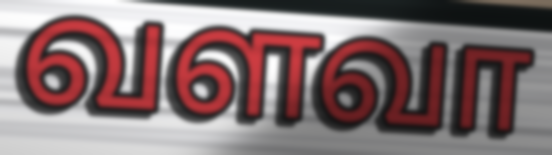
வளவா